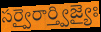
సర్వైరార్త్విజ్యైః